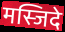
मस्जिदे